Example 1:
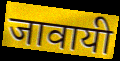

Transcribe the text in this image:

जावायी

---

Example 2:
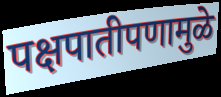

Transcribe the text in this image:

पक्षपातीपणामुळे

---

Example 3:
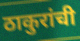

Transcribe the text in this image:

ठाकुरांची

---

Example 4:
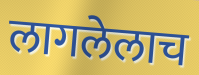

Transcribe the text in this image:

लागलेलाच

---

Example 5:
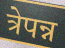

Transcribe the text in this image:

त्रेपन्न